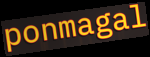
ponmagal